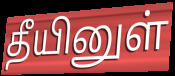
தீயினுள்